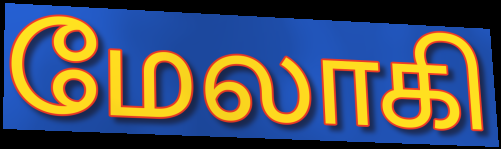
மேலாகி